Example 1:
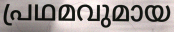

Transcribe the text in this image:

പ്രഥമവുമായ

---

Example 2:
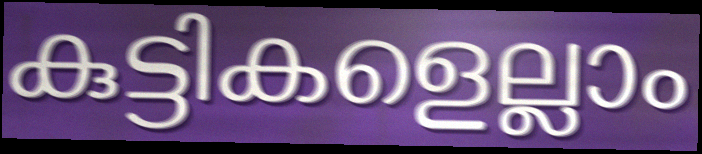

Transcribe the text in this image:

കുട്ടികളെല്ലാം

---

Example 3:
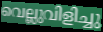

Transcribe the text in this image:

വെല്ലുവിളിച്ചു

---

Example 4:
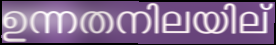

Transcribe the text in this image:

ഉന്നതനിലയില്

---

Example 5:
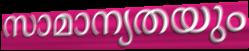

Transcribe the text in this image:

സാമാന്യതയും